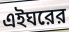
এইঘরের